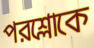
পরশ্লোকে